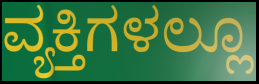
ವ್ಯಕ್ತಿಗಳಲ್ಲೂ